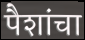
पैशांचा